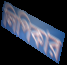
লিপিকার